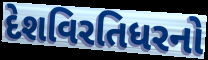
દેશવિરતિધરનો